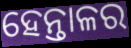
ହେନ୍ତାଳର